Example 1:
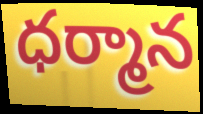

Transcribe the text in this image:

ధర్మాన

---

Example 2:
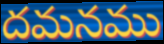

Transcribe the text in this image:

దమనము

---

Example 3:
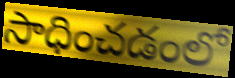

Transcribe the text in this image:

సాధించడంలో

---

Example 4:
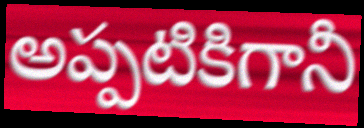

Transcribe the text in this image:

అప్పటికిగానీ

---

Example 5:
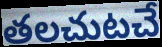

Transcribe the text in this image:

తలచుటచే